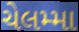
ચેલમ્મા